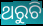
ଥରୁଚି